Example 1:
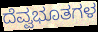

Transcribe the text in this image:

ದೆವ್ವಭೂತಗಳ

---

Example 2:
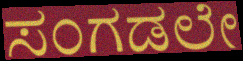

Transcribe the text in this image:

ಸಂಗಡಲೇ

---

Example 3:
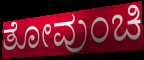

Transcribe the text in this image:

ತೋವುಂಚಿ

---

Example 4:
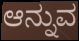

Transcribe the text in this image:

ಆನ್ನುವ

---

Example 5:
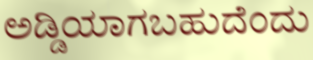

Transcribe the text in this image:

ಅಡ್ಡಿಯಾಗಬಹುದೆಂದು